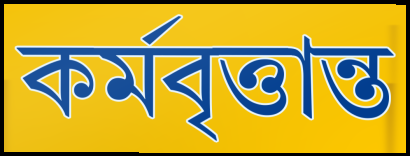
কর্মবৃত্তান্ত